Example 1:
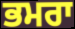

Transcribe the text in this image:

ਭਮਰਾ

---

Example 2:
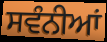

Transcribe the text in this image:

ਸਵੰਨੀਆਂ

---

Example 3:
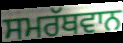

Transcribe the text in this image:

ਸਮਰੱਥਵਾਨ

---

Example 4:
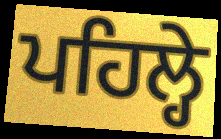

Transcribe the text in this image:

ਪਹਿਲ੍ਹੇ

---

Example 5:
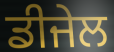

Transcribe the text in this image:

ਡੀਜੇਲ